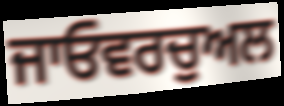
ਜਾਓਵਰਚੁਅਲ